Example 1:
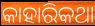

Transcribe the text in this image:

କାହାରିକଥା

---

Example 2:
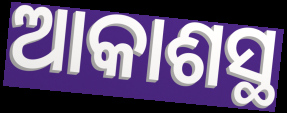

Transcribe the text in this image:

ଆକାଶସ୍ଥ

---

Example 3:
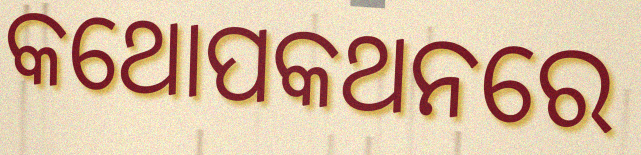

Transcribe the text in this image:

କଥୋପକଥନରେ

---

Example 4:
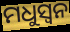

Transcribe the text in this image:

ମଧୁସ୍ୱନ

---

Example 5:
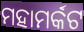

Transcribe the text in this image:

ମହାମର୍କଟ